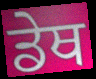
ਡੇਥ